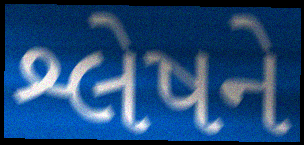
શ્લેષને